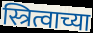
स्त्रित्वाच्या